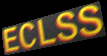
ECLSS